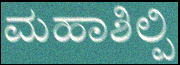
ಮಹಾಶಿಲ್ಪಿ